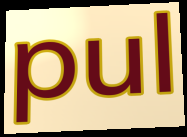
pul